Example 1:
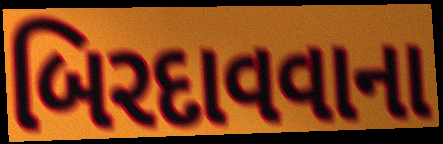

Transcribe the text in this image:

બિરદાવવાના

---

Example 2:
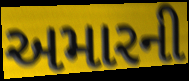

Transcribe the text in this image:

અમારની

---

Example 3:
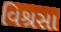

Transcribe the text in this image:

વિશ્રસા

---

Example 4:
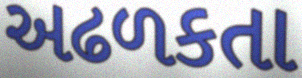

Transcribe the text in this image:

અઢળકતા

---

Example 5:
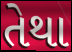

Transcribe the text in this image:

તેથા